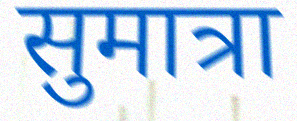
सुमात्रा